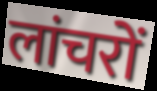
लांचरों